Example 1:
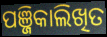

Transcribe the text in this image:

ପଞ୍ଜିକାଲିଖିତ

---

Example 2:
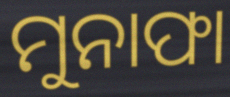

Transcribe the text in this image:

ମୁନାଫା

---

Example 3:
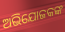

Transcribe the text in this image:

ଅଭିଯୋଜକଙ୍କ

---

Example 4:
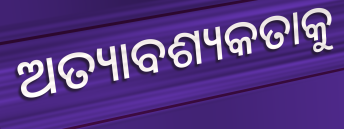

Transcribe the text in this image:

ଅତ୍ୟାବଶ୍ୟକତାକୁ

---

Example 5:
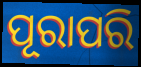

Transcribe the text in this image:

ପୂରାପରି